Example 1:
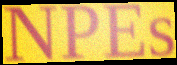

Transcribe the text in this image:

NPEs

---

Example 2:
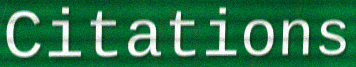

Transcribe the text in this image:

Citations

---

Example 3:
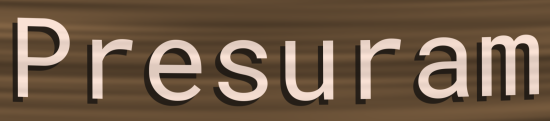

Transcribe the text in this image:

Presuram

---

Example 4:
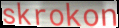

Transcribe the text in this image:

skrokon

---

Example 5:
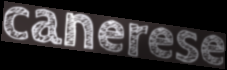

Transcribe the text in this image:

canerese